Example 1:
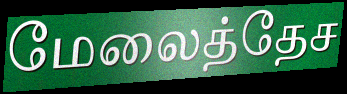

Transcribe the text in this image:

மேலைத்தேச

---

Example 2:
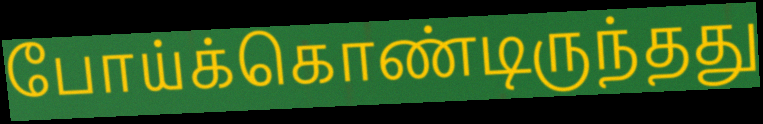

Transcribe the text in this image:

போய்க்கொண்டிருந்தது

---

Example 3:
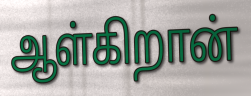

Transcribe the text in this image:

ஆள்கிறான்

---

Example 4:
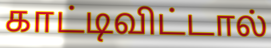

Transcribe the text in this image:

காட்டிவிட்டால்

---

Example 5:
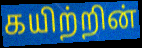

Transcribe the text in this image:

கயிற்றின்